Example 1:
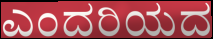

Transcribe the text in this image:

ಎಂದರಿಯದ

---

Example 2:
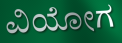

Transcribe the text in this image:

ವಿಯೋಗ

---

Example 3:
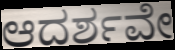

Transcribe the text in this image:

ಆದರ್ಶವೇ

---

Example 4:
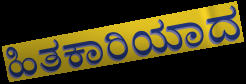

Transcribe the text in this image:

ಹಿತಕಾರಿಯಾದ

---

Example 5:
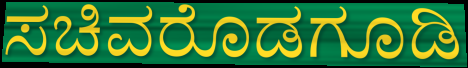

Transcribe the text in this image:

ಸಚಿವರೊಡಗೂಡಿ